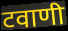
टवाणी